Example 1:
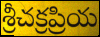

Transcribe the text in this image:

శ్రీచక్రప్రియ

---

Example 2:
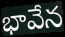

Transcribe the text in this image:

భావేన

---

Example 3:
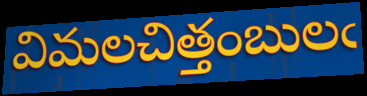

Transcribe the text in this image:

విమలచిత్తంబులఁ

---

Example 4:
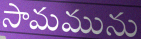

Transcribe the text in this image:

సామమును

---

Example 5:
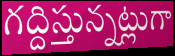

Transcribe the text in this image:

గద్దిస్తున్నట్లుగా